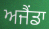
ਅਜੈਂਡਾ